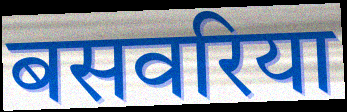
बसवरिया